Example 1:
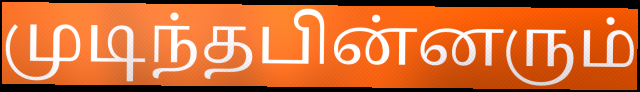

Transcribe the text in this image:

முடிந்தபின்னரும்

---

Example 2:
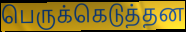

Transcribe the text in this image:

பெருக்கெடுத்தன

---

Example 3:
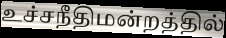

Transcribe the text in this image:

உச்சநீதிமன்றத்தில்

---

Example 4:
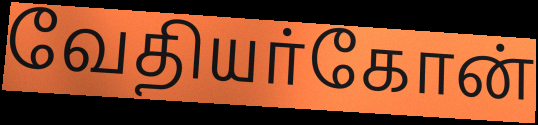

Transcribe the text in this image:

வேதியர்கோன்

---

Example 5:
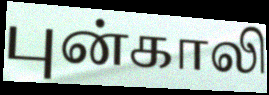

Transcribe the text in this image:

புன்காலி